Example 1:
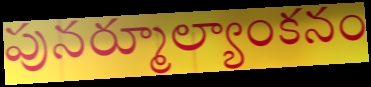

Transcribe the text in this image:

పునర్మూల్యాంకనం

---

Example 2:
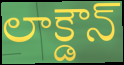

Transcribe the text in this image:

లాక్డౌన్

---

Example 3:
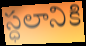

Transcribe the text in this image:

స్ధలానికి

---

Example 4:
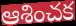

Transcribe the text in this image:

ఆశించక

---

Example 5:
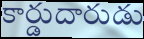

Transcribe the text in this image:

కార్డుదారుడు